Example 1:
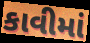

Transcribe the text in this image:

કાવીમાં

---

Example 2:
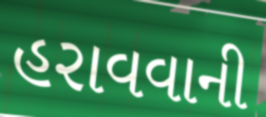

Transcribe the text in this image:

હરાવવાની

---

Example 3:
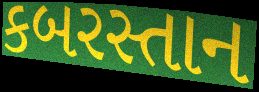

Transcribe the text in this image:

કબરસ્તાન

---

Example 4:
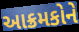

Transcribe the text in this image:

આક્રમકોને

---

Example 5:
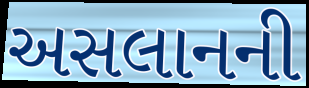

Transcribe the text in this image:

અસલાનની